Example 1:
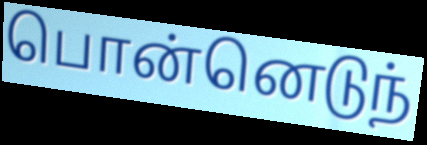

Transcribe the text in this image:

பொன்னெடுந்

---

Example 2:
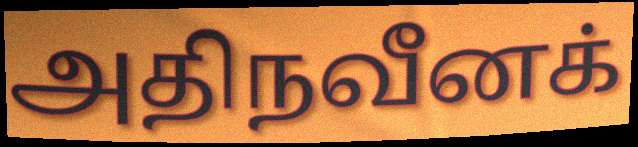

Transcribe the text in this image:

அதிநவீனக்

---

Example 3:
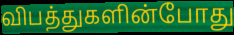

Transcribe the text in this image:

விபத்துகளின்போது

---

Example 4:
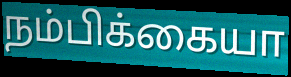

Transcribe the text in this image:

நம்பிக்கையா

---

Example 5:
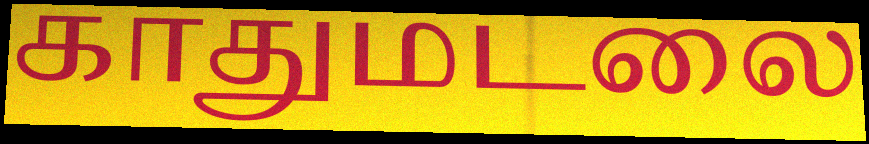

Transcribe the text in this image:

காதுமடலை